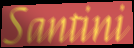
Santini